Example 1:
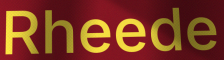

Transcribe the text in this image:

Rheede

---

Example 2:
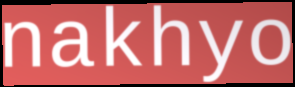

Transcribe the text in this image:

nakhyo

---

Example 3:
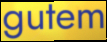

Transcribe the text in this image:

gutem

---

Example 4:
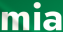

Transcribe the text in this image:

mia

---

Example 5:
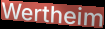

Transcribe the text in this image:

Wertheim